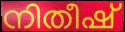
നിതീഷ്